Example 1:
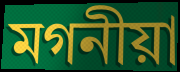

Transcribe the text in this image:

মগনীয়া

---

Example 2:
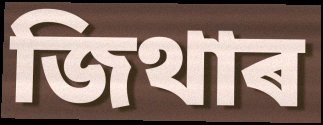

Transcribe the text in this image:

জিথাৰ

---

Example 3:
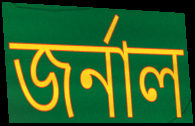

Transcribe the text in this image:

জৰ্নাল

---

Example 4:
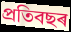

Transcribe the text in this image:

প্ৰতিবছৰ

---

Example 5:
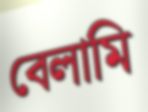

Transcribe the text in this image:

বেলামি